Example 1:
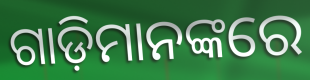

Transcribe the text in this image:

ଗାଡ଼ିମାନଙ୍କରେ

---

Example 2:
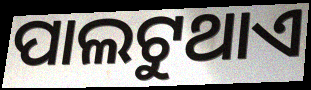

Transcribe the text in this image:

ପାଲଟୁଥାଏ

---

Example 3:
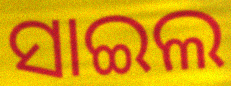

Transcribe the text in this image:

ସାଇଲ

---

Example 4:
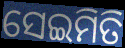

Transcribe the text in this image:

ସେଇମିତି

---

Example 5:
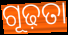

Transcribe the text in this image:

ଗୂଢ଼ତା